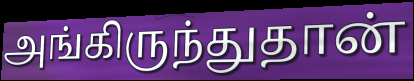
அங்கிருந்துதான்